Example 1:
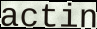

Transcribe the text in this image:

actin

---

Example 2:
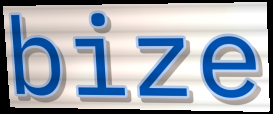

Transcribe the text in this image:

bize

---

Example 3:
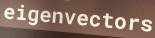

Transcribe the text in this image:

eigenvectors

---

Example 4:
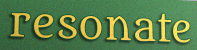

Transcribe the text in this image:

resonate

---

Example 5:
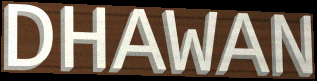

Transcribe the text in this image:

DHAWAN